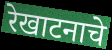
रेखाटनाचे